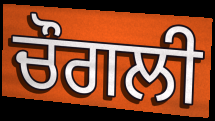
ਚੌਗਲੀ